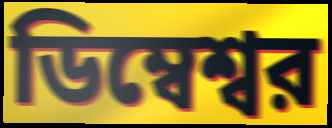
ডিম্বেশ্বর